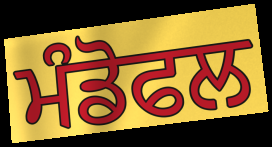
ਮੰਡੋਫਲ